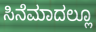
ಸಿನೆಮಾದಲ್ಲೂ